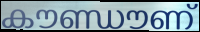
കൗണ്ഡൗണ്